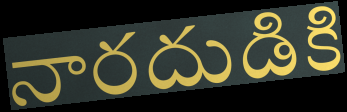
నారదుడికి